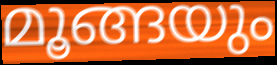
മൂങ്ങയും